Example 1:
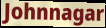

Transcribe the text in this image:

Johnnagar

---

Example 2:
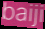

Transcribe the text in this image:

baiji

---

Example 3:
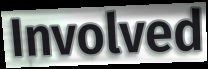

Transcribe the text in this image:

Involved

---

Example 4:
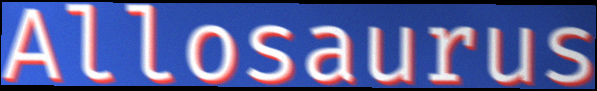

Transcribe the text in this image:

Allosaurus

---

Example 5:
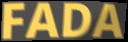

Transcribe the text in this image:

FADA